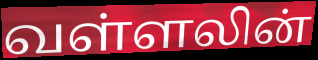
வள்ளலின்